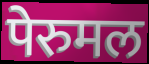
पेरुमल